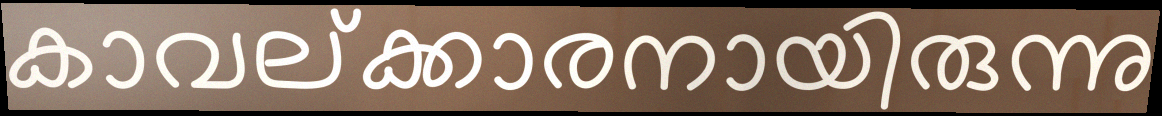
കാവല്ക്കാരനായിരുന്നു